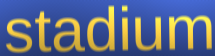
stadium